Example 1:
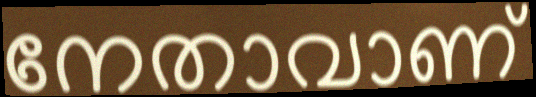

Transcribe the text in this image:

നേതാവാണ്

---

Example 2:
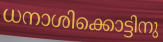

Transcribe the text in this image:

ധനാശിക്കൊട്ടിനു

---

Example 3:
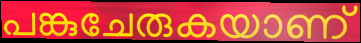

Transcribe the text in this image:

പങ്കുചേരുകയാണ്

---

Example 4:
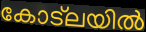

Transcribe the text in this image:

കോട്ലയിൽ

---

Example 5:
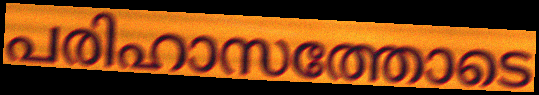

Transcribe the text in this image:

പരിഹാസത്തോടെ